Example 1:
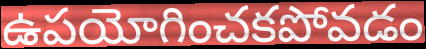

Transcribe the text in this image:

ఉపయోగించకపోవడం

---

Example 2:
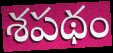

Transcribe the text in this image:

శపథం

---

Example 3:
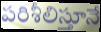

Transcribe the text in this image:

పరిశీలిస్తూనే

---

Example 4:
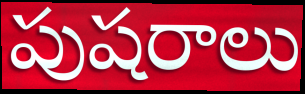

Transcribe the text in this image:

పుషరాలు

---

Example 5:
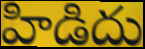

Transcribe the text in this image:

హిడిదు